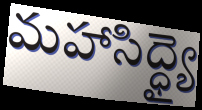
మహాసిద్ధ్యై